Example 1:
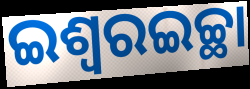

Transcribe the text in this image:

ଇଶ୍ୱରଇଚ୍ଛା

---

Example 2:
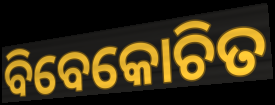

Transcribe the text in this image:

ବିବେକୋଚିତ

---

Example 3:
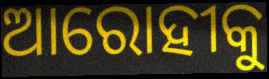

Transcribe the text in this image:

ଆରୋହୀକୁ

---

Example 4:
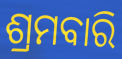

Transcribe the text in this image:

ଶ୍ରମବାରି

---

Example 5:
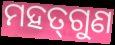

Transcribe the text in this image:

ମହତ୍‍ଗୁଣ